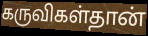
கருவிகள்தான்